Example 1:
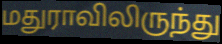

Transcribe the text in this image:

மதுராவிலிருந்து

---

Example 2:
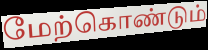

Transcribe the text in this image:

மேற்கொண்டும்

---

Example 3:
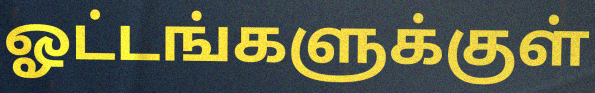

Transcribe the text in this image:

ஓட்டங்களுக்குள்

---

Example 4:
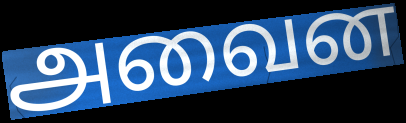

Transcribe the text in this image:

அவைன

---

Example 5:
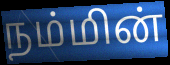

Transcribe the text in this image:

நம்மின்